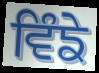
ਵਿੰਙੇ